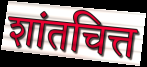
शांतचित्त